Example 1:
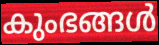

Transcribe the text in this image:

കുംഭങ്ങൾ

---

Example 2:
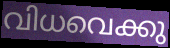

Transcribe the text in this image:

വിധവെക്കു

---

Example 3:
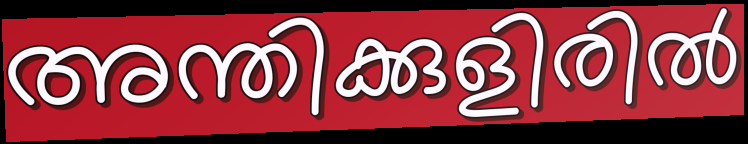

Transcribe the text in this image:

അന്തിക്കുളിരിൽ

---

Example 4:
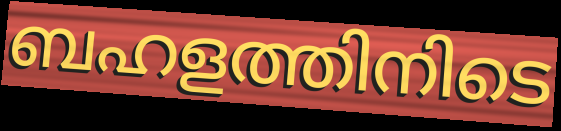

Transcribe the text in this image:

ബഹളത്തിനിടെ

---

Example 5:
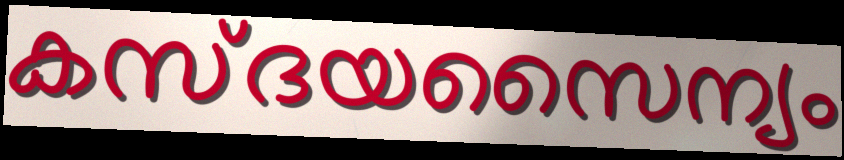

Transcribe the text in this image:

കസ്ദയസൈന്യം